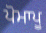
ਪੋਮਾਪੂ